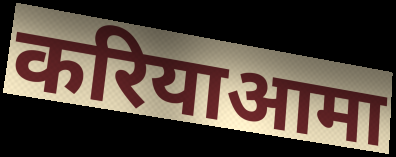
करियाआमा